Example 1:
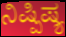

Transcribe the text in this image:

ನಿಷ್ಪಿಷ್ಯ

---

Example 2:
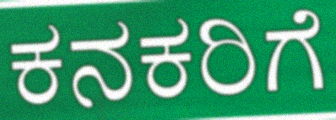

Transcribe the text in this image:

ಕನಕರಿಗೆ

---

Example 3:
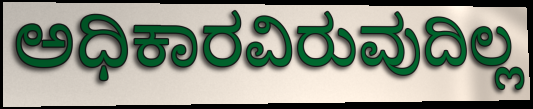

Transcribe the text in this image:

ಅಧಿಕಾರವಿರುವುದಿಲ್ಲ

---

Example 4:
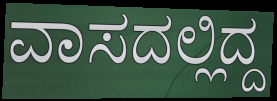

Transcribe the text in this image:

ವಾಸದಲ್ಲಿದ್ದ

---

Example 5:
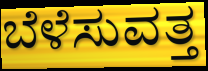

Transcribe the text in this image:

ಬೆಳೆಸುವತ್ತ